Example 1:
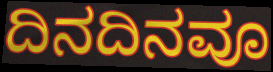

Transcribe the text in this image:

ದಿನದಿನವೂ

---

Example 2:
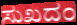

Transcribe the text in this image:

ಸುಖದಂ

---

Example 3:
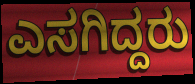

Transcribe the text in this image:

ಎಸಗಿದ್ದರು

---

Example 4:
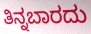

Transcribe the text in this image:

ತಿನ್ನಬಾರದು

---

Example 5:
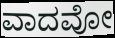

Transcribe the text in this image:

ವಾದವೋ